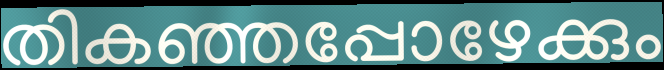
തികഞ്ഞപ്പോഴേക്കും